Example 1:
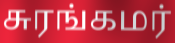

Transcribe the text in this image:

சுரங்கமர்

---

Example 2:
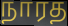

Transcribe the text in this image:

நாரத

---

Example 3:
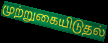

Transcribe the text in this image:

முற்றுகையிடுதல்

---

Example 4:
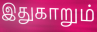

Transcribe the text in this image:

இதுகாறும்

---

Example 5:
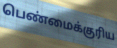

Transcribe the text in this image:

பெண்மைக்குரிய